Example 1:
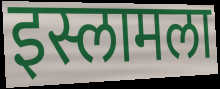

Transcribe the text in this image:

इस्लामला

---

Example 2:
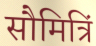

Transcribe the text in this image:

सौमित्रिं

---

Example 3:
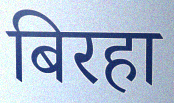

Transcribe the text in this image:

बिरहा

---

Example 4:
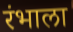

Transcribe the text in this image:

रंभाला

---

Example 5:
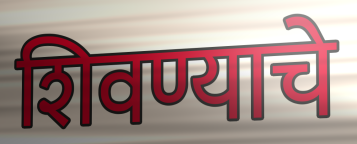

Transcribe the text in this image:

शिवण्याचे